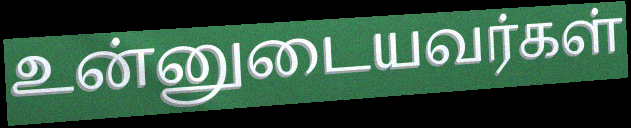
உன்னுடையவர்கள்